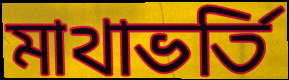
মাথাভর্তি